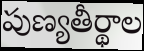
పుణ్యతీర్థాల